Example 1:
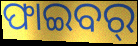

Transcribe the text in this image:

ଫାଇବର୍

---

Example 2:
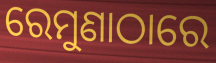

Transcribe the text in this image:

ରେମୁଣାଠାରେ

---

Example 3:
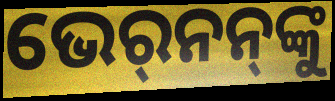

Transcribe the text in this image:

ଭେର୍‍ନନ୍‌ଙ୍କୁ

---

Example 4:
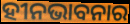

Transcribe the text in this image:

ହୀନଭାବନାର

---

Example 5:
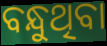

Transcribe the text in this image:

ବନ୍ଧୁଥିବା